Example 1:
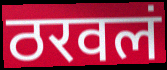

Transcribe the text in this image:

ठरवलं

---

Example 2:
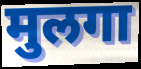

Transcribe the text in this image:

मुलगा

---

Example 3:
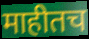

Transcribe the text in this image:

माहीतच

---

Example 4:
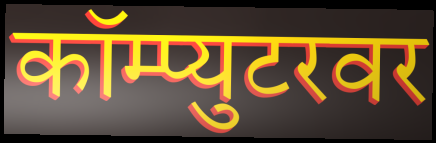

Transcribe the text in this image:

कॉम्प्युटरवर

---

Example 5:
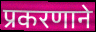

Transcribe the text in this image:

प्रकरणाने